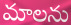
మాలను